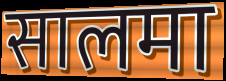
सालमा